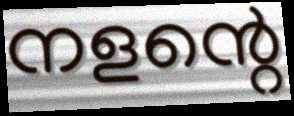
നളന്റെ